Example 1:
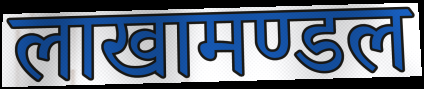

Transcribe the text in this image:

लाखामण्डल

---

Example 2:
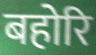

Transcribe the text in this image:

बहोरि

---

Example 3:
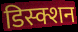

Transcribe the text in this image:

डिस्क्शन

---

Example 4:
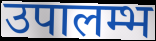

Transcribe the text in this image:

उपालम्भ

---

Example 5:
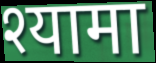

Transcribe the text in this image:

श्यामा